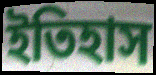
ইতিহাস